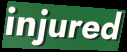
injured